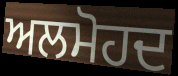
ਅਲਮੋਹਦ